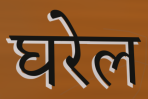
घरेल